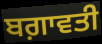
ਬਗ਼ਾਵਤੀ